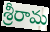
శ్రీరామ